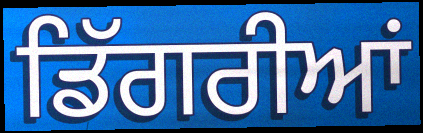
ਡਿੱਗਰੀਆਂ